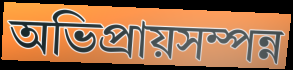
অভিপ্রায়সম্পন্ন